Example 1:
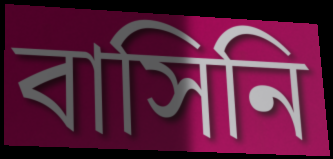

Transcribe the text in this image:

বাসিনি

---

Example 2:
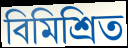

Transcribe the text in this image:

বিমিশ্রিত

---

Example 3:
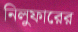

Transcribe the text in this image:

নিলুফারের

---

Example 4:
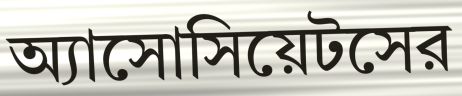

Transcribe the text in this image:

অ্যাসোসিয়েটসের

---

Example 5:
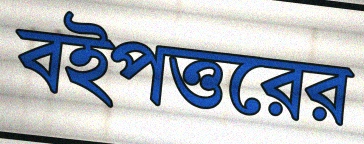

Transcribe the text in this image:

বইপত্তরের